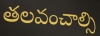
తలవంచాల్సి